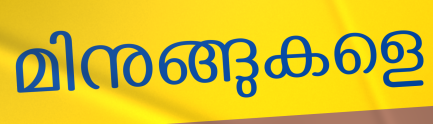
മിനുങ്ങുകളെ